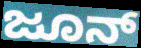
ಜೂನ್